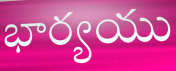
భార్యయు